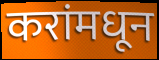
करांमधून